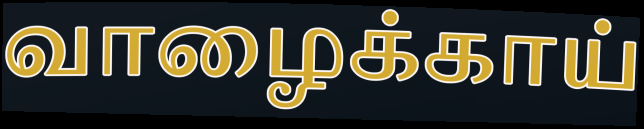
வாழைக்காய்